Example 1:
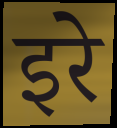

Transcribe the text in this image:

इरे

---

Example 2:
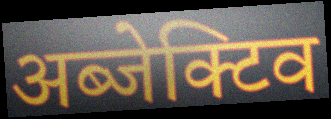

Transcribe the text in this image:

अब्जेक्टिव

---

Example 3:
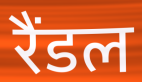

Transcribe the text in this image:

रैंडल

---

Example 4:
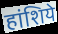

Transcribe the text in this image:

हांशिये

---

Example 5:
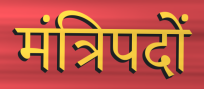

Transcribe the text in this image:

मंत्रिपदों